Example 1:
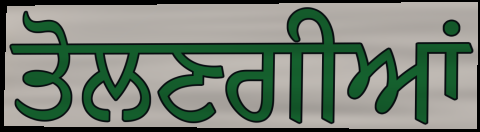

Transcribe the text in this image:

ਤੋਲਣਗੀਆਂ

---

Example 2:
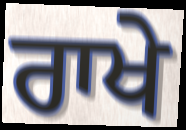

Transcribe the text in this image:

ਰਾਖੇ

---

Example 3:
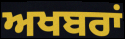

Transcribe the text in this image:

ਅਖਬਰਾਂ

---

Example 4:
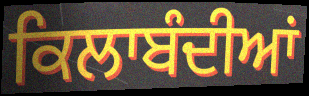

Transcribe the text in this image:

ਕਿਲਾਬੰਦੀਆਂ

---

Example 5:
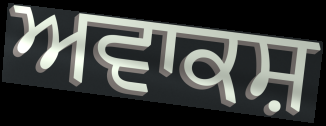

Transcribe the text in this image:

ਅਵਾਕਸ਼